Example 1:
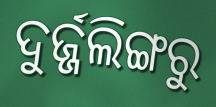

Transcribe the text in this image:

ଦୁର୍ଜ୍ଜଲିଙ୍ଗରୁ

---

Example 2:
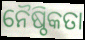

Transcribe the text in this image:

ନୈଷ୍ଠିକତା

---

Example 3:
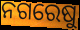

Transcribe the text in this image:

ନଗରେଷୁ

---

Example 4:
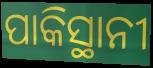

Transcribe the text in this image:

ପାକିସ୍ଥାନୀ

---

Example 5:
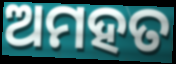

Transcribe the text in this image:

ଅମହତ